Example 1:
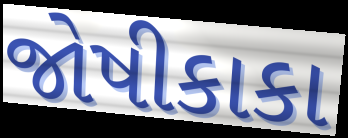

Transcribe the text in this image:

જોષીકાકા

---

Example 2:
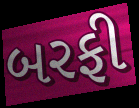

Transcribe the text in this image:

બરફી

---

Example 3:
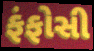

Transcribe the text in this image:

ફંફોસી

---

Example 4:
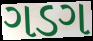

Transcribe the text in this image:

ગડગ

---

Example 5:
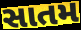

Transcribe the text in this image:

સાતમ